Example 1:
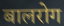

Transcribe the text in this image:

बालरोग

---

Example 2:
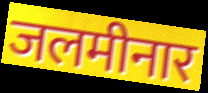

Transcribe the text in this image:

जलमीनार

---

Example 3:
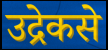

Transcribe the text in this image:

उद्रेकसे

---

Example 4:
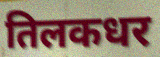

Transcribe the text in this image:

तिलकधर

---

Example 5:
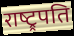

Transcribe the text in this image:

राष्ट्र्रपति